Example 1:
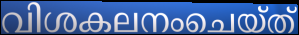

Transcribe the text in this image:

വിശകലനംചെയ്ത്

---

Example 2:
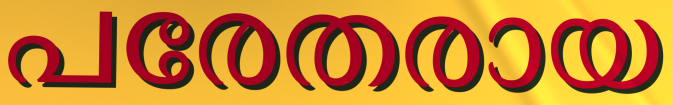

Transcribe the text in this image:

പരേതരായ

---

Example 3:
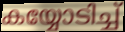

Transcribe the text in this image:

കയ്യോടിച്ച്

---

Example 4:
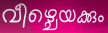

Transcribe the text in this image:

വീഴ്ചെയക്കും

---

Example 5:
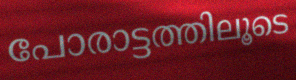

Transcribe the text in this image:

പോരാട്ടത്തിലൂടെ